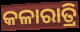
କଳାରାତ୍ରି